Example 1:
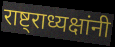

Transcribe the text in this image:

राष्ट्राध्यक्षांनी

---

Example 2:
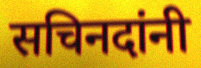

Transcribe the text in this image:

सचिनदांनी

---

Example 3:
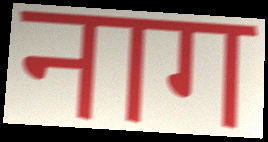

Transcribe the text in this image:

नाग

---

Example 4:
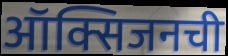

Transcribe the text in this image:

ऑक्सिजनची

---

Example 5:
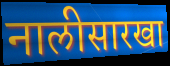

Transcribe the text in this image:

नालीसारखा